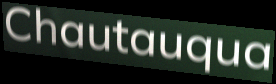
Chautauqua